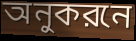
অনুকরনে